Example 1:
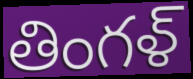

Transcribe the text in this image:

తింగళ్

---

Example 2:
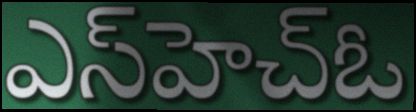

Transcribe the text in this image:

ఎస్‌హెచ్ఓ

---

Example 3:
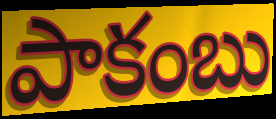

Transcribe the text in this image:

పాకంబు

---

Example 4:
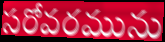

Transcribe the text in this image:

సరోవరమును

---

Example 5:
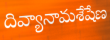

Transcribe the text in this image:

దివ్యానామశేషేణ